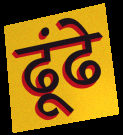
ढूंढे